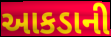
આકડાની